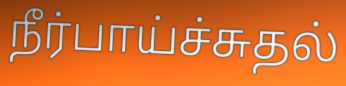
நீர்பாய்ச்சுதல்